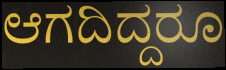
ಆಗದಿದ್ದರೂ